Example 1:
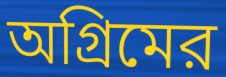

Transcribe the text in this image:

অগ্রিমের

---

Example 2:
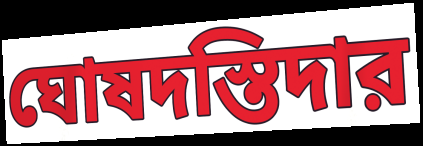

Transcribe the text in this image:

ঘোষদস্তিদার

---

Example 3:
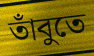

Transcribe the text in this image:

তাঁবুতে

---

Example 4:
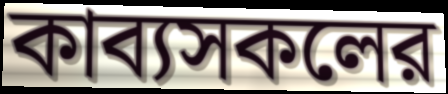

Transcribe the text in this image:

কাব্যসকলের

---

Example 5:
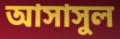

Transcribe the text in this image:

আসাসুল